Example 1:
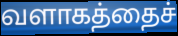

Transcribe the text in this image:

வளாகத்தைச்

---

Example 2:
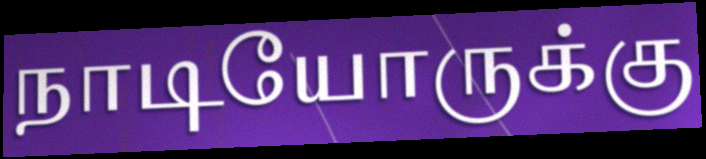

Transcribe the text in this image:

நாடியோருக்கு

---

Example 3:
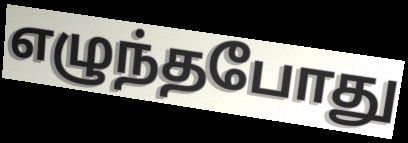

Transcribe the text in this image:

எழுந்தபோது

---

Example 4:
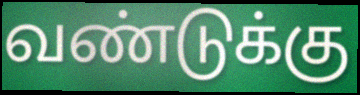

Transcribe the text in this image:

வண்டுக்கு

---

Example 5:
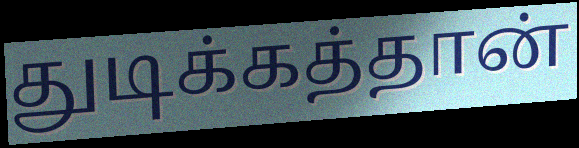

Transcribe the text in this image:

துடிக்கத்தான்